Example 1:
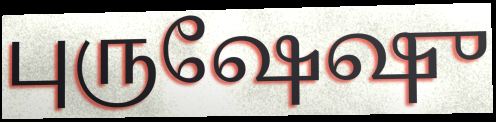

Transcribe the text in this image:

புருஷேஷு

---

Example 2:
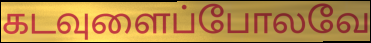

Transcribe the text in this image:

கடவுளைப்போலவே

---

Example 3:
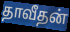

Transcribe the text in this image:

தாவீதன்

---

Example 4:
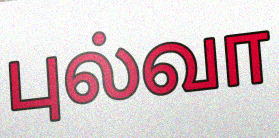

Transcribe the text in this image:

புல்வா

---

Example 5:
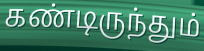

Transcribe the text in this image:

கண்டிருந்தும்